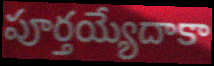
పూర్తయ్యేదాకా